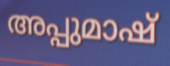
അപ്പുമാഷ്